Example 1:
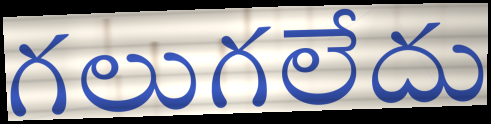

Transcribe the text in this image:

గలుగలేదు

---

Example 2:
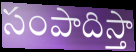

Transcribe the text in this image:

సంపాదిస్తా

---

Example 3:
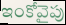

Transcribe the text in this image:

ఇంకోవైపు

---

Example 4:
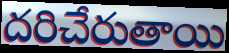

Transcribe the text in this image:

దరిచేరుతాయి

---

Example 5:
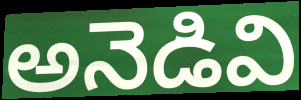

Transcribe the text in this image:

అనెడివి